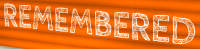
REMEMBERED